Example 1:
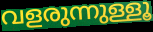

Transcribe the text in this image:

വളരുന്നുള്ളൂ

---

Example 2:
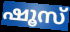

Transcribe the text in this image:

ഷൂസ്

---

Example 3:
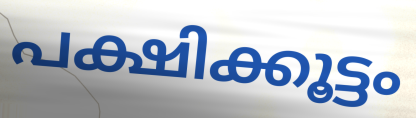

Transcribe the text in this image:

പക്ഷിക്കൂട്ടം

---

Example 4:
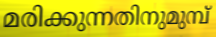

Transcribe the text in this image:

മരിക്കുന്നതിനുമുമ്പ്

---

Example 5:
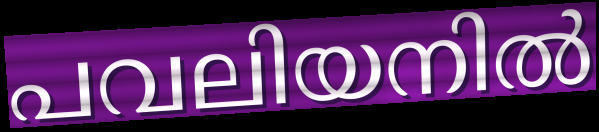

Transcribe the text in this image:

പവലിയനിൽ